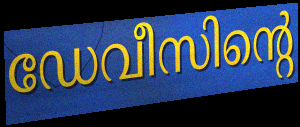
ഡേവീസിന്റെ